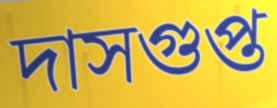
দাসগুপ্ত